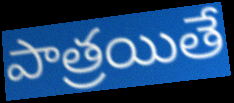
పాత్రయితే